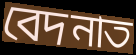
বেদনাত